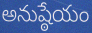
అనుష్ఠేయం